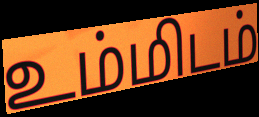
உம்மிடம்